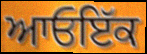
ਆਓਇੱਕ